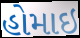
હોમાઇ